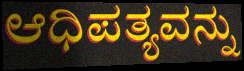
ಆಧಿಪತ್ಯವನ್ನು